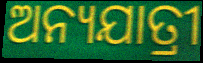
ଅନ୍ଯଯାତ୍ରୀ